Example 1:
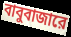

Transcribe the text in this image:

বাবুবাজারে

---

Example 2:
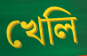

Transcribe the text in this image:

খেলি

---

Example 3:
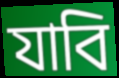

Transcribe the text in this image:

যাবি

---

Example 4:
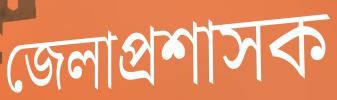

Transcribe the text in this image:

জেলাপ্রশাসক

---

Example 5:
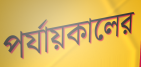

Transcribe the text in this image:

পর্যায়কালের